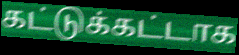
கட்டுக்கட்டாக